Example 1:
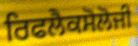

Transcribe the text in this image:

ਰਿਫਲੈਕਸੋਲੋਜੀ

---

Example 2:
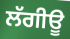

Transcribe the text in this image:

ਲੱਗੀਊ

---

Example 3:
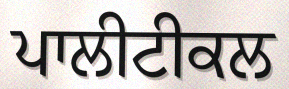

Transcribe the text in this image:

ਪਾਲੀਟੀਕਲ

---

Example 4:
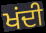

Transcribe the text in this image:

ਖਂਦੀ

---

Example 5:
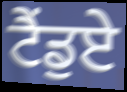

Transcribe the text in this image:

ਟੈਂਡੁਏ